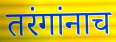
तरंगांनाच